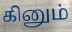
கினும்